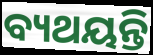
ବ୍ୟଥୟନ୍ତି